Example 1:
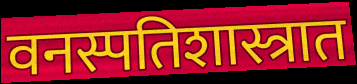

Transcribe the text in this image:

वनस्पतिशास्त्रात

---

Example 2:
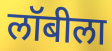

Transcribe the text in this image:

लॉबीला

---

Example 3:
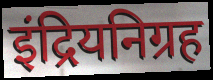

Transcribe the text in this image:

इंद्रियनिग्रह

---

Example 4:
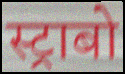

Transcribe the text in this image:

स्ट्राबो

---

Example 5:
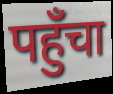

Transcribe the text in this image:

पहुँचा